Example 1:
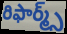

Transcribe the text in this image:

రిఫార్మ్స్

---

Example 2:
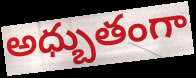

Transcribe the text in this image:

అధ్బుతంగా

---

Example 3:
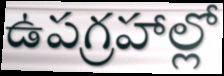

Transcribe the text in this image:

ఉపగ్రహాల్లో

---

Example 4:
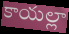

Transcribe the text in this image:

కాయల్లా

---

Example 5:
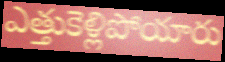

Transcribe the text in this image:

ఎత్తుకెళ్లిపోయారు